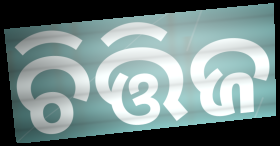
ଚିତ୍ତିଜ